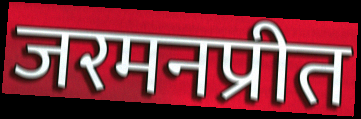
जरमनप्रीत